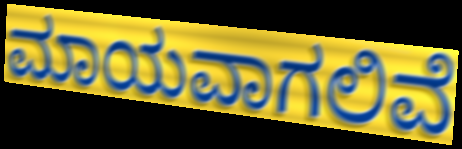
ಮಾಯವಾಗಲಿವೆ